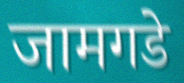
जामगडे